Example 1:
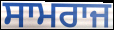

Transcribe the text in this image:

ਸਾਮਰਾਜ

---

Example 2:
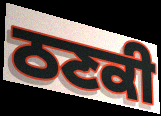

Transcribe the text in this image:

ਠਣਕੀ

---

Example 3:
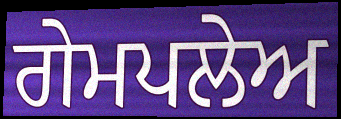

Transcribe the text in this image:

ਗੇਮਪਲੇਅ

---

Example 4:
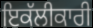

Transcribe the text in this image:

ਇਕੱਲੀਕਾਰੀ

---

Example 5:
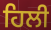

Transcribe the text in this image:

ਹਿਲੀ